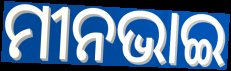
ମୀନଭାଇ